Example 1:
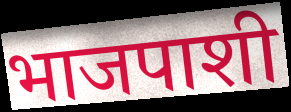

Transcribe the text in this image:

भाजपाशी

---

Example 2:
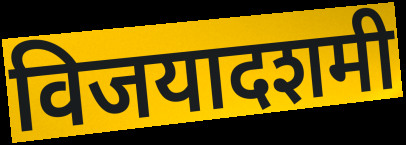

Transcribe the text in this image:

विजयादशमी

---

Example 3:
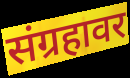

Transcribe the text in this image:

संग्रहावर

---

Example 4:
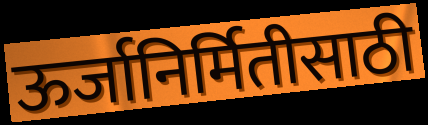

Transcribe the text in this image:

ऊर्जानिर्मितीसाठी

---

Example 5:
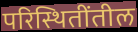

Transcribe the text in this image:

परिस्थितींतील